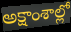
అక్షాంశాల్లో